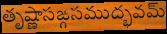
తృష్ణాసఙ్గసముద్భవమ్